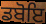
ਡਬੋਇ